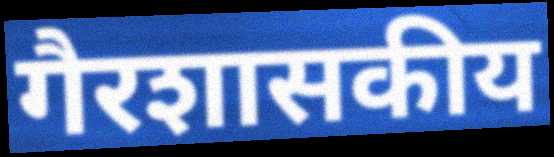
गैरशासकीय